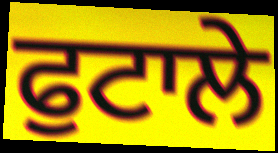
ਫੁਟਾਲੇ